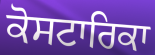
ਕੋਸਟਾਰਿਕਾ